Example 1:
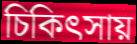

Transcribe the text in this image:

চিকিৎসায়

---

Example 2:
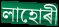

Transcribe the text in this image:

লাহোৰী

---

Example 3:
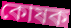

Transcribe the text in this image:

কোষক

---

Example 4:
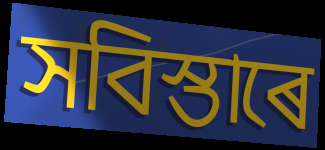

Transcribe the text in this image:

সবিস্তাৰে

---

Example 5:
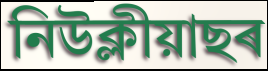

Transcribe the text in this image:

নিউক্লীয়াছৰ